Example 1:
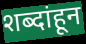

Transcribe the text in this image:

शब्दांहून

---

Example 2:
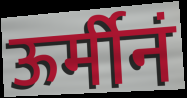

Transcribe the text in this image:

ऊर्मीनं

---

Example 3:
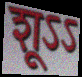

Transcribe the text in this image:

शूऽऽ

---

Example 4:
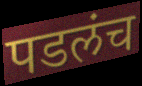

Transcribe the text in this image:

पडलंच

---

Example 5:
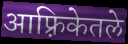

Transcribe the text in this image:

आफ़्रिकेतले